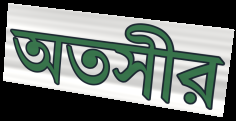
অতসীর